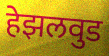
हेझलवुड